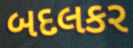
બદલકર